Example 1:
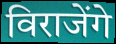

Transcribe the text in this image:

विराजेंगे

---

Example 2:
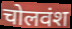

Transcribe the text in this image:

चोलवंश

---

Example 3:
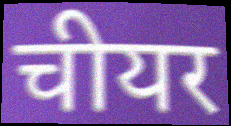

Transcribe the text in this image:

चीयर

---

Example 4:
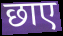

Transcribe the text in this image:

छाए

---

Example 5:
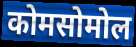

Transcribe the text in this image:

कोमसोमोल